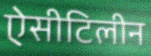
ऐसीटिलीन